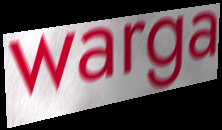
warga